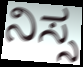
ನಿಸ್ಸ